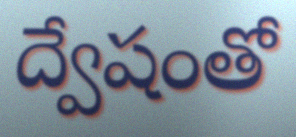
ద్వేషంతో